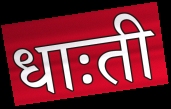
धाःती